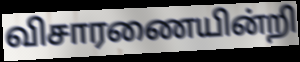
விசாரணையின்றி